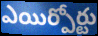
ఎయిర్పోర్టు